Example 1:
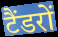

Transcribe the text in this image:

टैंडरों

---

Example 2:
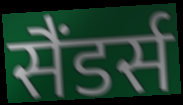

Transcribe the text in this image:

सैंडर्स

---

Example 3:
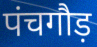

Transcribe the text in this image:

पंचगौड़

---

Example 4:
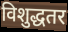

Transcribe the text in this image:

विशुद्धतर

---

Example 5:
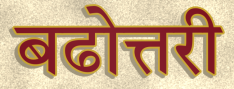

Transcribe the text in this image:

बढोत्तरी